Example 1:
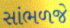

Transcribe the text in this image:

સાંભળજે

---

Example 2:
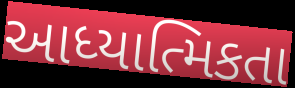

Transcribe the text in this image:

આધ્યાત્મિકતા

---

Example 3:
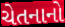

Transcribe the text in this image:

ચેતનાનો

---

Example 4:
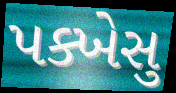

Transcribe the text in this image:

પક્ખેસુ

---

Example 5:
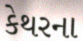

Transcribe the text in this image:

કેથરના